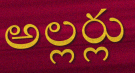
అల్లర్లు